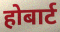
होबार्ट